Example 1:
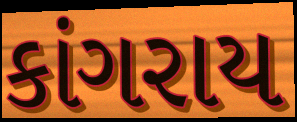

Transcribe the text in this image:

કાંગરાય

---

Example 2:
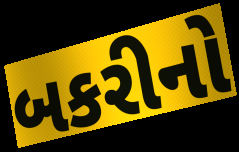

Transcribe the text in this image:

બકરીનો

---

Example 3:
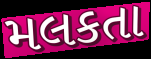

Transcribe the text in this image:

મલકતા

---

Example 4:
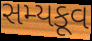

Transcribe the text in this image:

સમ્યકૂવ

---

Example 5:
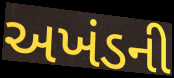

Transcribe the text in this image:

અખંડની